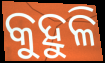
କୁହୁଳି